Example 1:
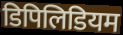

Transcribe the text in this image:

डिपिलिडियम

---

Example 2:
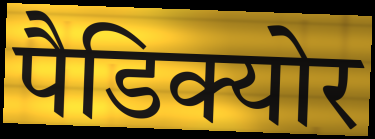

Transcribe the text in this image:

पैडिक्योर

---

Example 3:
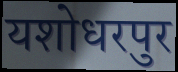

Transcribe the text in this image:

यशोधरपुर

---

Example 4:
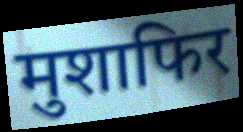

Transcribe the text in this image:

मुशाफिर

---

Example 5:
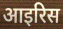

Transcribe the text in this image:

आइरिस